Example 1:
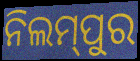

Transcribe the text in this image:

ନିଲମ୍‍ପୁର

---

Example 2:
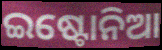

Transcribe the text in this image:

ଇଷ୍ଟୋନିଆ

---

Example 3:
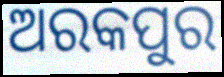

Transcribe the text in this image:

ଅରକପୁର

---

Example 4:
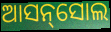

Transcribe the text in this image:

ଆସନ୍‌ସୋଲ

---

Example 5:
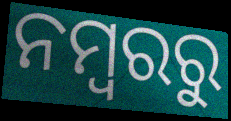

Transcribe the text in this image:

ନମ୍ୱରରୁ